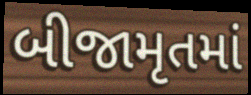
બીજામૃતમાં